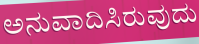
ಅನುವಾದಿಸಿರುವುದು